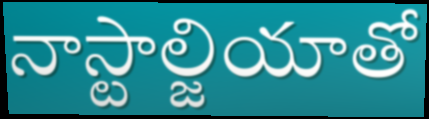
నాస్టాల్జియాతో